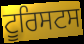
ਟੂਰਿਸਟਸ